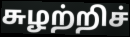
சுழற்றிச்